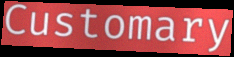
Customary